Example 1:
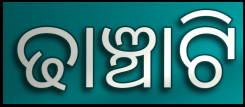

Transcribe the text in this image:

ଢାଞ୍ଚାଟି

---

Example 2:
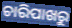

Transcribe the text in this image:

ଚାରିପାଖରୁ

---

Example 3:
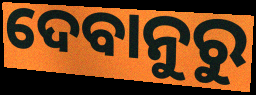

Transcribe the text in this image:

ଦେବାନୁରୁ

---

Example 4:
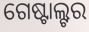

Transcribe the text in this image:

ଗେଷ୍ଟାଲ୍ଟର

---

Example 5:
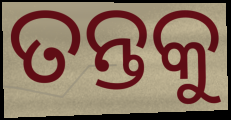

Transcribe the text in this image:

ତନ୍ତକୁ